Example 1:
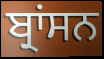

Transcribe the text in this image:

ਬ੍ਰਾਂਸਨ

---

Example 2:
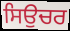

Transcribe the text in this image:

ਸਿਉਚਰ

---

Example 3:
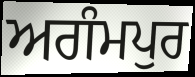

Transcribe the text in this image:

ਅਗੰਮਪੁਰ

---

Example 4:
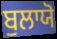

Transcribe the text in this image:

ਬੁਲਾਯੋ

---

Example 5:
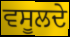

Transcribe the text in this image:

ਵਸੂਲਦੇ